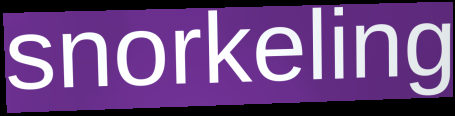
snorkeling